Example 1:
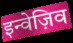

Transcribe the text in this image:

इन्वेज़िव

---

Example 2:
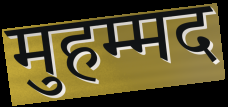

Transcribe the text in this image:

मुहम्‍मद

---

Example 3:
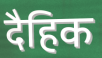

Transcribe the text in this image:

दैहिक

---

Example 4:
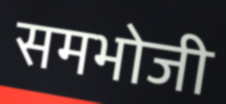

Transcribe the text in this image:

समभोजी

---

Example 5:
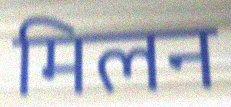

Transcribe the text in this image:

मिलन